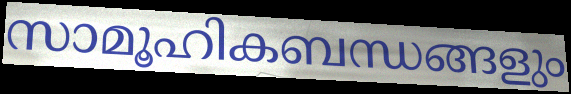
സാമൂഹികബന്ധങ്ങളും